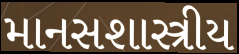
માનસશાસ્ત્રીય